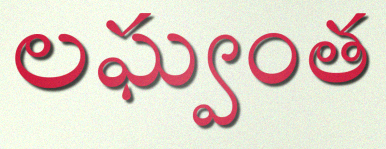
లఘ్వంత